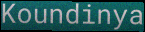
Koundinya